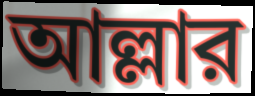
আল্লার